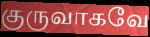
குருவாகவே